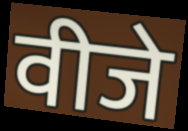
वीजे